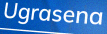
Ugrasena